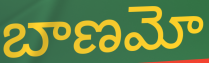
బాణమో